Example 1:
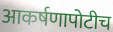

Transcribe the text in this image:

आकर्षणापोटीच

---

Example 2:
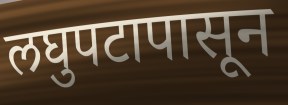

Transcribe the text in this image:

लघुपटापासून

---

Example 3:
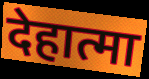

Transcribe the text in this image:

देहात्मा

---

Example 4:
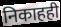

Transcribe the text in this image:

निकाहही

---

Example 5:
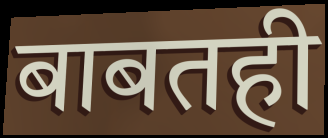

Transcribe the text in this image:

बाबतही